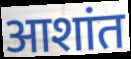
आशांत